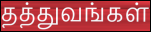
தத்துவங்கள்